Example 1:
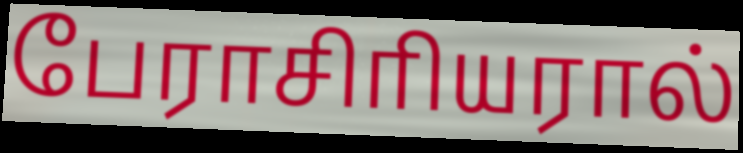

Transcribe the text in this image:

பேராசிரியரால்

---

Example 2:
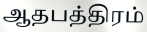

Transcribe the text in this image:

ஆதபத்திரம்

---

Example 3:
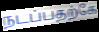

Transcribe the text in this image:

நடப்பதற்கே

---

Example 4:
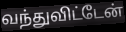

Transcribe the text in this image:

வந்துவிட்டேன்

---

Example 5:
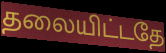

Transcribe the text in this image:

தலையிட்டதே